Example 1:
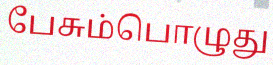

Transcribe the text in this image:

பேசும்பொழுது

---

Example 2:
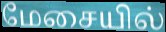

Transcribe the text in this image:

மேசையில்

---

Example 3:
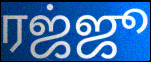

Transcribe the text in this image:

ரஜ்ஜூ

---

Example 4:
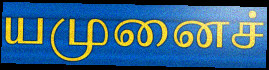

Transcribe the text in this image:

யமுனைச்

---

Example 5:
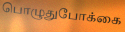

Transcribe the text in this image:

பொழுதுபோக்கை